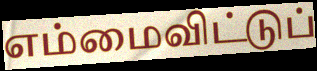
எம்மைவிட்டுப்